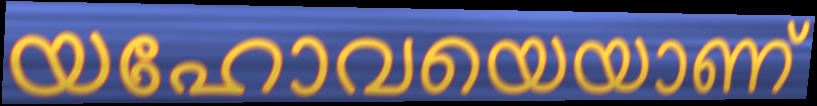
യഹോവയെയാണ്